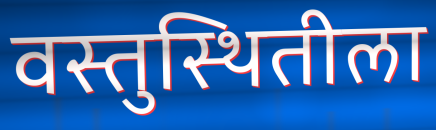
वस्तुस्थितीला